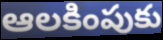
ఆలకింపుకు